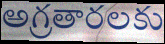
అగ్రతారలకు